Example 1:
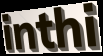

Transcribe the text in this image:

inthi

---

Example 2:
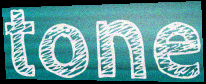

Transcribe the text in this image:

tone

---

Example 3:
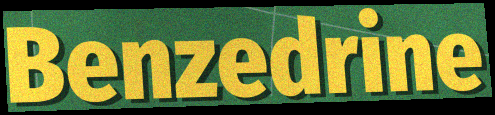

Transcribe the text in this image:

Benzedrine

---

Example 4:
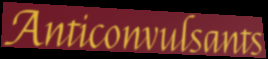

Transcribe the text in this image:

Anticonvulsants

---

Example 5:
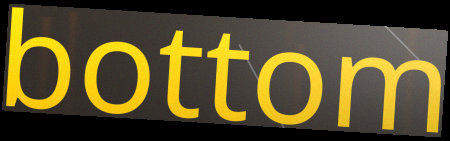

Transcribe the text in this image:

bottom